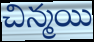
చిన్మయి